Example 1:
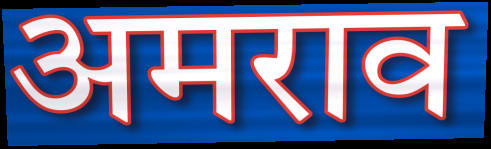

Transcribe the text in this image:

अमराव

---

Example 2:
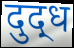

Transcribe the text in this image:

दुद्ध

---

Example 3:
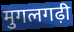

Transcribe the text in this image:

मुगलगढ़ी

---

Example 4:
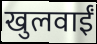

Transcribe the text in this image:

खुलवाईं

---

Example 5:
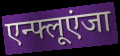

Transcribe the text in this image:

एन्फ्लूएंजा